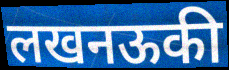
लखनऊकी